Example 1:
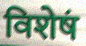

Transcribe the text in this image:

विशेषं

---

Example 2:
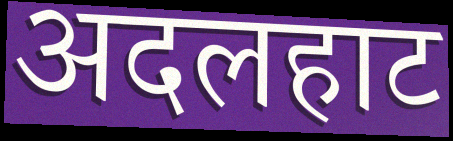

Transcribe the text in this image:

अदलहाट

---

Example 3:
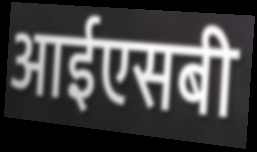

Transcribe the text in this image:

आईएसबी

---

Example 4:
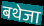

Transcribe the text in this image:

बथेजा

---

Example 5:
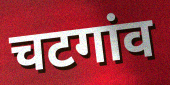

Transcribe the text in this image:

चटगांव